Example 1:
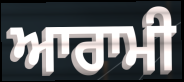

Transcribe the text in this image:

ਆਰਾਮੀ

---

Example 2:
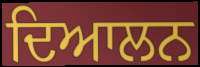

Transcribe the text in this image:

ਦਿਆਲਨ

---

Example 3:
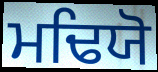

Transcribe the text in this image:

ਮਢਿਯੋ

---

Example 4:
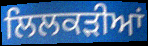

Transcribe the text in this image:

ਲਿਲਕੜੀਆਂ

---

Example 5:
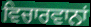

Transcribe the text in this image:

ਵਿਚਾਰਵਾਨਾਂ